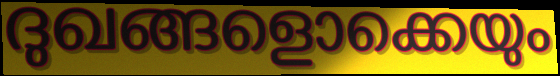
ദുഖങ്ങളൊക്കെയും